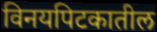
विनयपिटकातील